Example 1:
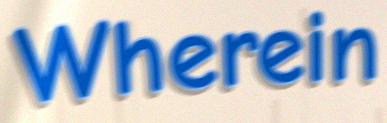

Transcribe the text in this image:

Wherein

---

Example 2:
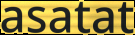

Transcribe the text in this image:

asatat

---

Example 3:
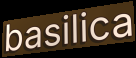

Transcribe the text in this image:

basilica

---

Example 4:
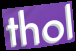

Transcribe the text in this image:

thol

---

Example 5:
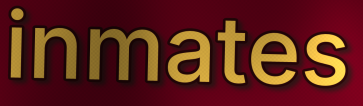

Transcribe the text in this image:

inmates